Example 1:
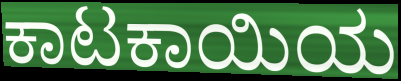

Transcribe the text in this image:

ಕಾಟಕಾಯಿಯ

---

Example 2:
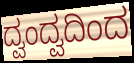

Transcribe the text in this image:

ದ್ವಂದ್ವದಿಂದ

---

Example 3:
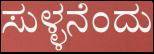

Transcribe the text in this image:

ಸುಳ್ಳನೆಂದು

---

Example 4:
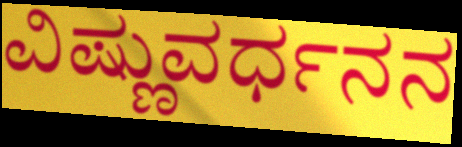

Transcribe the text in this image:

ವಿಷ್ಣುವರ್ಧನನ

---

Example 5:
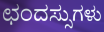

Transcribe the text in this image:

ಛಂದಸ್ಸುಗಳು